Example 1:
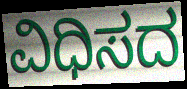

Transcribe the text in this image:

ವಿಧಿಸದ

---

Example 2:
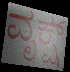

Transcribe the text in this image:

ವೃಕ್ಷ್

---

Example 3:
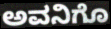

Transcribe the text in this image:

ಅವನಿಗೊ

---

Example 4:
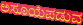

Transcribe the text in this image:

ಅಸೂಯೆಪಡುವ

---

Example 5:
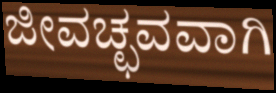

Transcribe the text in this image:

ಜೀವಚ್ಛವವಾಗಿ